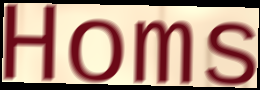
Homs